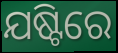
ଯଷ୍ଟିରେ